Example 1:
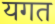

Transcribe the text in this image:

यगत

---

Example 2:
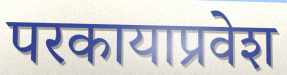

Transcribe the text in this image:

परकायाप्रवेश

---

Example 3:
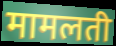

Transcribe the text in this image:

मामलती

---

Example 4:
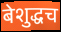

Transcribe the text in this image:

बेशुद्धच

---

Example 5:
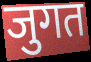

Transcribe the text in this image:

जुगत